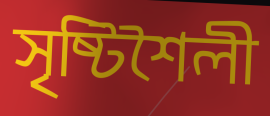
সৃষ্টিশৈলী